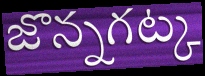
జొన్నగట్క